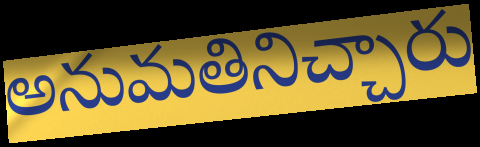
అనుమతినిచ్చారు